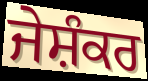
ਜੇਸ਼ੰਕਰ